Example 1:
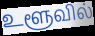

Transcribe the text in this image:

உளூவில்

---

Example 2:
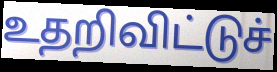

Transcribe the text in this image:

உதறிவிட்டுச்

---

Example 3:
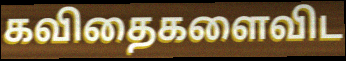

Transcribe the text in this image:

கவிதைகளைவிட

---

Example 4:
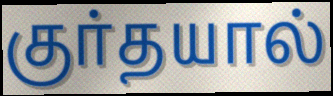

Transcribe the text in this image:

குர்தயால்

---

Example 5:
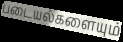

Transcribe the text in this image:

படையல்களையும்